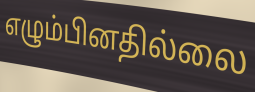
எழும்பினதில்லை